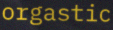
orgastic